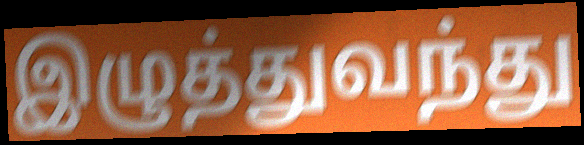
இழுத்துவந்து